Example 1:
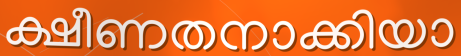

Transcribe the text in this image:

ക്ഷീണതനാക്കിയാ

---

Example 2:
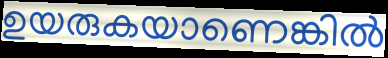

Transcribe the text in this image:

ഉയരുകയാണെങ്കിൽ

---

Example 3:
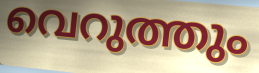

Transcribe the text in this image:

വെറുത്തും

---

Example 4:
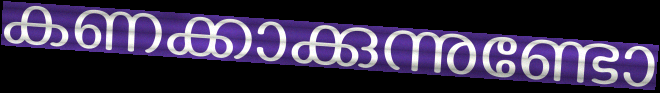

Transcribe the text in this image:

കണക്കാക്കുന്നുണ്ടോ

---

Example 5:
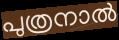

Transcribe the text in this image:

പുത്രനാൽ